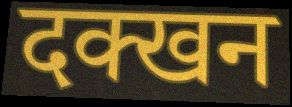
दक्खन